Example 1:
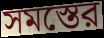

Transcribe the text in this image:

সমস্তের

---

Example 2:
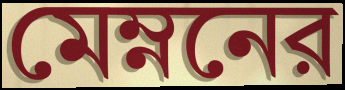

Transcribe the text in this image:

মেম্ননের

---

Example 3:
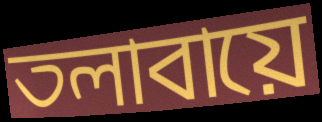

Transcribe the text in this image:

তলাবায়ে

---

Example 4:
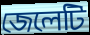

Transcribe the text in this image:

জেলেটি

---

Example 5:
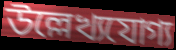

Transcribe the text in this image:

উল্লেখ্যযোগ্য